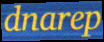
dnarep